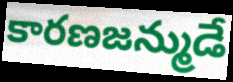
కారణజన్ముడే